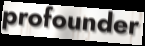
profounder